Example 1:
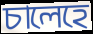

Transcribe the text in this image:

চালেহে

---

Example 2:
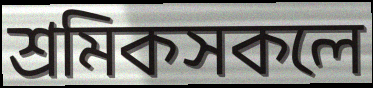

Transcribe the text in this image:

শ্ৰমিকসকলে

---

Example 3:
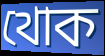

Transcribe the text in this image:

থোক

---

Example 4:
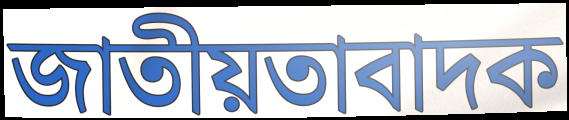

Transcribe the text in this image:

জাতীয়তাবাদক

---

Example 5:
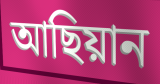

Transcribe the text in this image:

আছিয়ান